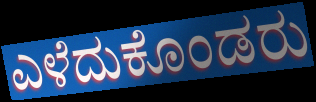
ಎಳೆದುಕೊಂಡರು